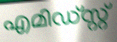
എമിഡ്സ്റ്റ്